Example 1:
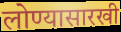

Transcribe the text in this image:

लोण्यासारखी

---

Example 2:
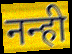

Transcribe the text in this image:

नन्ही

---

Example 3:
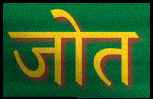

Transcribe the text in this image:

जोत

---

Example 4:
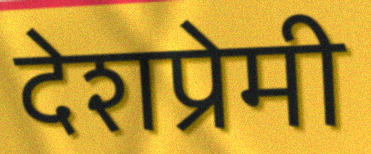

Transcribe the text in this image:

देशप्रेमी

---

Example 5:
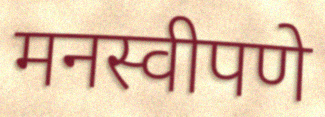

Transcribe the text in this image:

मनस्वीपणे